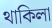
থাকিলা